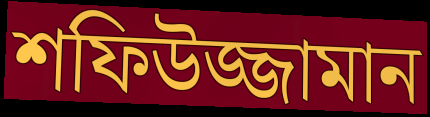
শফিউজ্জামান